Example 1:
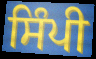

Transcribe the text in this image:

ਸਿੰਪੀ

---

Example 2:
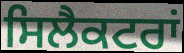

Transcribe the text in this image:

ਸਿਲੈਕਟਰਾਂ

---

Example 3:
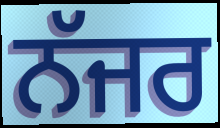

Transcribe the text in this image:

ਨੱਜਰ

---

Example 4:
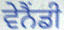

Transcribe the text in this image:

ਵੇਨੈਂਡੀ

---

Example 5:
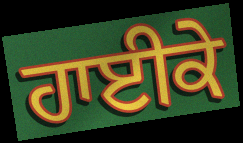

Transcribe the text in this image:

ਹਾਈਕੇ